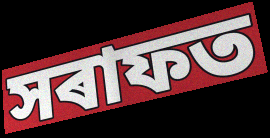
সৰাফত